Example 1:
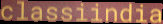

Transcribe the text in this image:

classiindia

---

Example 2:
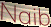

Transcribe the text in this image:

Naib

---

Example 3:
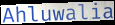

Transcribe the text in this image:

Ahluwalia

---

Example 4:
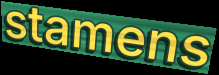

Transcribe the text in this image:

stamens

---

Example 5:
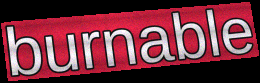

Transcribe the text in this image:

burnable